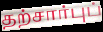
தற்சார்புப்